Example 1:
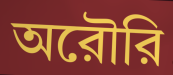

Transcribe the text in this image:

অরৌরি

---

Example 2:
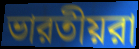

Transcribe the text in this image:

ভারতীয়রা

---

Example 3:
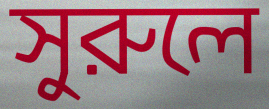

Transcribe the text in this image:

সুরুলে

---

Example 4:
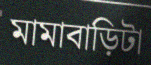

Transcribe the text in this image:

মামাবাড়িটা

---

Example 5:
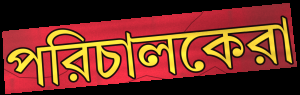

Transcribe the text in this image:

পরিচালকেরা